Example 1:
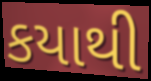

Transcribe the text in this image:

કયાથી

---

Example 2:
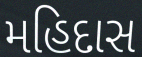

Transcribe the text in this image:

મહિદાસ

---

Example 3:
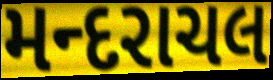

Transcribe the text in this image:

મન્દરાચલ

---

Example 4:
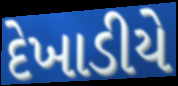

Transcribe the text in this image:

દેખાડીયે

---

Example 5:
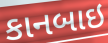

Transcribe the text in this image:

કાનબાઇ